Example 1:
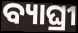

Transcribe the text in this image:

ବ୍ୟାଘ୍ରୀ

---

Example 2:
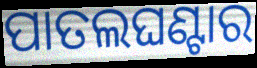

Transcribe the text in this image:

ପାତଲଘଣ୍ଟାର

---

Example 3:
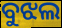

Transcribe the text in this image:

ବୁଝଲ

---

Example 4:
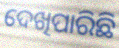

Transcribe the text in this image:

ଦେଖିପାରିଛି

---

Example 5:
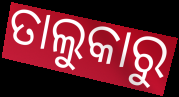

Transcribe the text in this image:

ତାଲୁକାରୁ